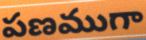
పణముగా